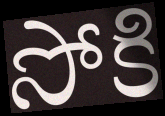
సోకి